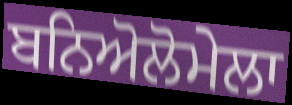
ਬਨਿਅੋਲੋਮੇਲਾ